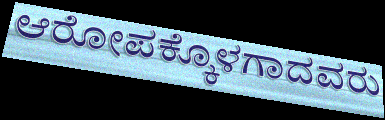
ಆರೋಪಕ್ಕೊಳಗಾದವರು